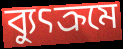
ব্যুৎক্রমে